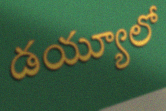
డయ్యూలో